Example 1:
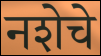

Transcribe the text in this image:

नशेचे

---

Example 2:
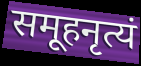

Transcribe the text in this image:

समूहनृत्यं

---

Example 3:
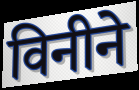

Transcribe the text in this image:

विनीने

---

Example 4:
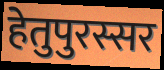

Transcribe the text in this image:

हेतुपुरस्सर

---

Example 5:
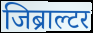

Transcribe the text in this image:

जिब्राल्टर